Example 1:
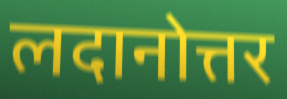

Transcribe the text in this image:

लदानोत्तर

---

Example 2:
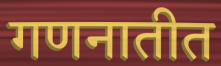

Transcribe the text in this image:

गणनातीत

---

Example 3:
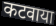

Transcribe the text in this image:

कटवाया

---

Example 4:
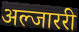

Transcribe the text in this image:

अल्जाररी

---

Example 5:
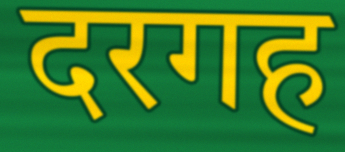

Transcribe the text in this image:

दरगह